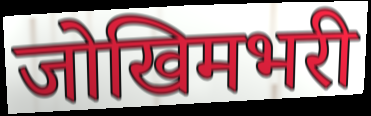
जोखिमभरी